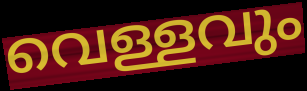
വെള്ളവും